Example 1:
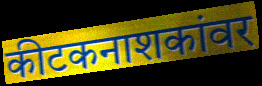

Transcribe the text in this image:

कीटकनाशकांवर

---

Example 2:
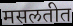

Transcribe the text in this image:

मसलतीत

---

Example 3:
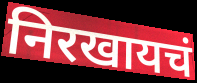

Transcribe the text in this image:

निरखायचं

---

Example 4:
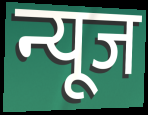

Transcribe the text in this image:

न्यूज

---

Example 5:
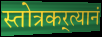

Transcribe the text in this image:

स्तोत्रकर्त्यानं